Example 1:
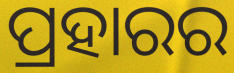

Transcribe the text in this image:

ପ୍ରହାରର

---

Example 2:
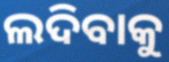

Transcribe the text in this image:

ଲଦିବାକୁ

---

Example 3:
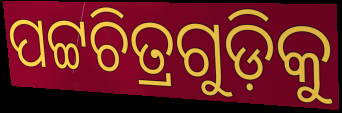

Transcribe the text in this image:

ପଟ୍ଟଚିତ୍ରଗୁଡ଼ିକୁ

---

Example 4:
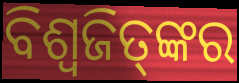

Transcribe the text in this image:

ବିଶ୍ଵଜିତ୍‌ଙ୍କର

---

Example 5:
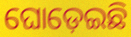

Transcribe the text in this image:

ଘୋଡ଼େଇଛି